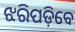
ଝରିପଡ଼ିବେ